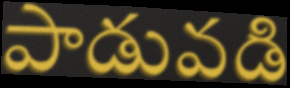
పాడువడి